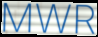
MWR